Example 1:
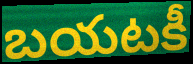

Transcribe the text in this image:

బయటకీ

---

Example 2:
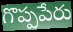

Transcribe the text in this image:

గొప్పపేరు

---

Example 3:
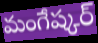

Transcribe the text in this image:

మంగేష్కర్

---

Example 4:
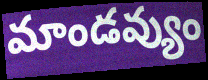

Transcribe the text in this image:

మాండవ్యుం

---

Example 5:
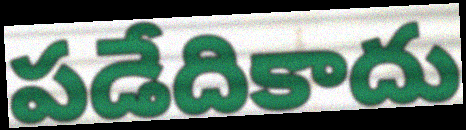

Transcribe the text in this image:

పడేదికాదు